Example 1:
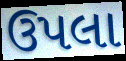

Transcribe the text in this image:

ઉપલા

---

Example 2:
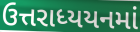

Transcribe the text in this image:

ઉત્તરાધ્યયનમાં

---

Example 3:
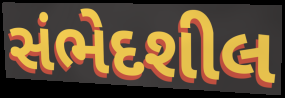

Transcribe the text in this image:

સંભેદશીલ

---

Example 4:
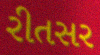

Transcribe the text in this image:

રીતસર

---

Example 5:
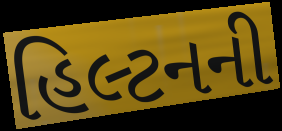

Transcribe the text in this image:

હિલ્ટનની